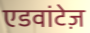
एडवांटेज़